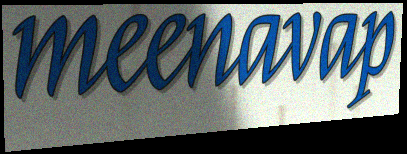
meenavap